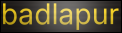
badlapur